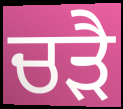
ਚੜੈ